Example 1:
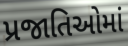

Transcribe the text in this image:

પ્રજાતિઓમાં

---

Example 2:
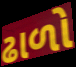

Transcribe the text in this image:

ઢાળો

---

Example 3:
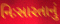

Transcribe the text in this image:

નિઃસારતાનું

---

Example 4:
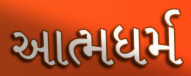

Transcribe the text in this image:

આત્મધર્મ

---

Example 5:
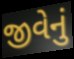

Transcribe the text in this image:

જીવેનું